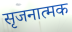
सृजनात्मक